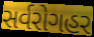
સર્વરોગહર